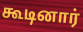
கூடினார்